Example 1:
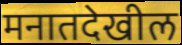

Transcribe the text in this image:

मनातदेखील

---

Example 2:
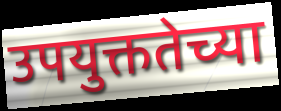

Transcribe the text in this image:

उपयुक्ततेच्या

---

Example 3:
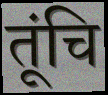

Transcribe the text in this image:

तूंचि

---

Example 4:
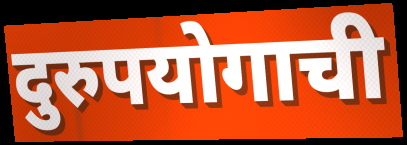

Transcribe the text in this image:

दुरुपयोगाची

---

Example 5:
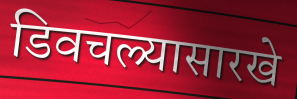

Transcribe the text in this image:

डिवचल्यासारखे